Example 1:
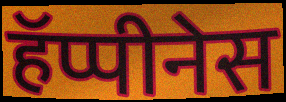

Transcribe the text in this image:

हॅप्पीनेस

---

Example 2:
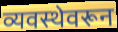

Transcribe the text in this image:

व्यवस्थेवरून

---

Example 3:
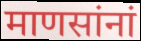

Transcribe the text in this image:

माणसांनां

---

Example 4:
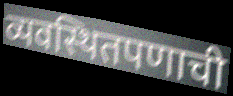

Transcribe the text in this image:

व्यवस्थितपणाची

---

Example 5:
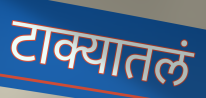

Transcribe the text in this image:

टाक्यातलं